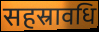
सहस्रावधि